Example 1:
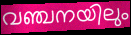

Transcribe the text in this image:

വഞ്ചനയിലും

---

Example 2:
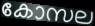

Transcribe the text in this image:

കോസല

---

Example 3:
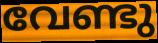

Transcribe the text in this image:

വേണ്ടു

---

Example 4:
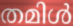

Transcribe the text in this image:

തമിൾ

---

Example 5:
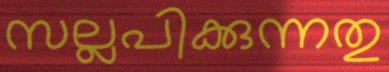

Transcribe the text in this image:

സല്ലപിക്കുന്നതു